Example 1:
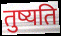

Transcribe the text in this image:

तुष्यति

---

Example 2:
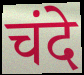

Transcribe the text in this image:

चंदे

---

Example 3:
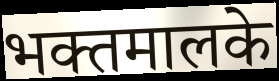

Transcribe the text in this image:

भक्तमालके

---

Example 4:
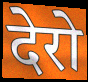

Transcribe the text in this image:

देरो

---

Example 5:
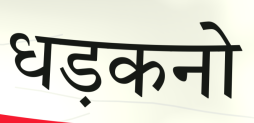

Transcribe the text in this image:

धड़कनो